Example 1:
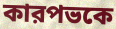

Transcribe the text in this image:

কারপভকে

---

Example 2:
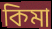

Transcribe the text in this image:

কিমা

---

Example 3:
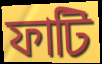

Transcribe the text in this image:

ফাটি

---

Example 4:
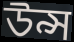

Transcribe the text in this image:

উন্স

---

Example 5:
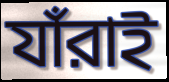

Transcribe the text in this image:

যাঁরাই